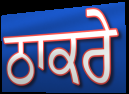
ਠਾਕਰੇ